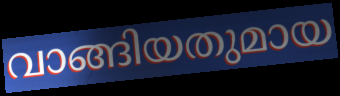
വാങ്ങിയതുമായ